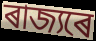
ৰাজ্যৰে